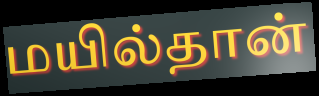
மயில்தான்